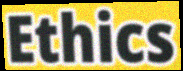
Ethics